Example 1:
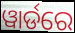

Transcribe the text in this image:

ୱାର୍ଡରେ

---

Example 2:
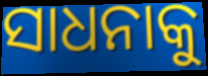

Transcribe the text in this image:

ସାଧନାକୁ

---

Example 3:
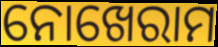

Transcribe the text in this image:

ନୋଖେରାମ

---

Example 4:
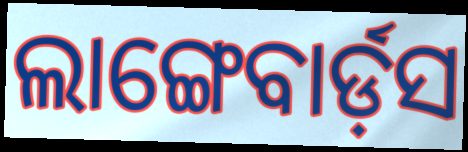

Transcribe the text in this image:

ଲାଙ୍ଗେବାର୍ଡ଼ସ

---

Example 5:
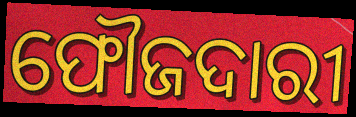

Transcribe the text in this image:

ଫୌଜଦାରୀ